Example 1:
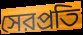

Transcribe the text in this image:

সেরপ্রতি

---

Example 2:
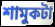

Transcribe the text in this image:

শামুকটা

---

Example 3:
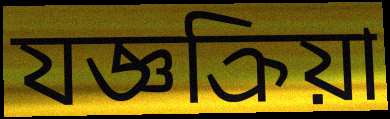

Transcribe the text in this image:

যজ্ঞক্রিয়া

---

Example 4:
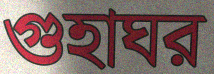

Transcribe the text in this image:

গুহাঘর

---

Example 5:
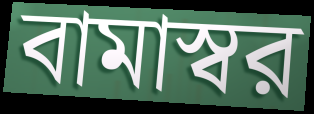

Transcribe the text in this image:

বামাস্বর